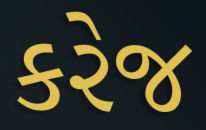
કરેજ